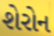
શેરોન